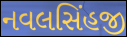
નવલસિંહજી